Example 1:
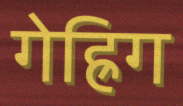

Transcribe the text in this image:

गेह्रिग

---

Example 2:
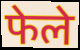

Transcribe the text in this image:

फेले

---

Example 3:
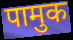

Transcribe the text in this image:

पामुक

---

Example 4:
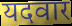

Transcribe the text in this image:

यदवार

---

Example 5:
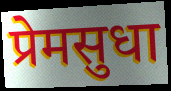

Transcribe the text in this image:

प्रेमसुधा